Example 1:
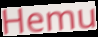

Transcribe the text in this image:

Hemu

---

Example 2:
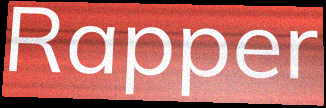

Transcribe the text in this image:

Rapper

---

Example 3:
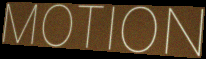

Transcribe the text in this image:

MOTION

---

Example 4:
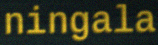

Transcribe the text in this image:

ningala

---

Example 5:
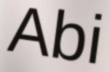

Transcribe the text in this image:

Abi